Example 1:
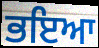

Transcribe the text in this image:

ਭਇਆ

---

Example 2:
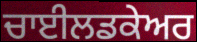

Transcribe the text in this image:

ਚਾਈਲਡਕੇਅਰ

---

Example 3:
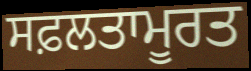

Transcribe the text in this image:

ਸਫ਼ਲਤਾਮੂਰਤ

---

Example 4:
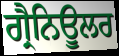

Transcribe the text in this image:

ਗ੍ਰੈਨਿਊਲਰ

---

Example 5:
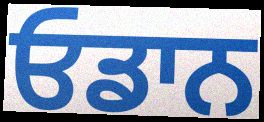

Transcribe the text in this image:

ਓਡਾਨ